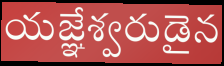
యజ్ఞేశ్వరుడైన